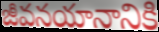
జీవనయానానికి